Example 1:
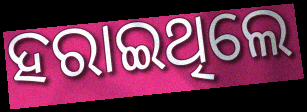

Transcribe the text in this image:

ହରାଇଥିଲେ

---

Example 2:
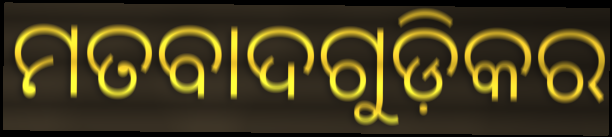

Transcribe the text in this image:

ମତବାଦଗୁଡ଼ିକର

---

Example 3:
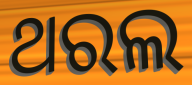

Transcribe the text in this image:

ଥରଲ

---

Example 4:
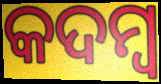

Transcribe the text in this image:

କଦମ୍ୱ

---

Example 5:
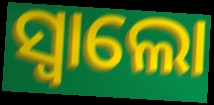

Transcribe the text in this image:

ସ୍ବାଲୋ